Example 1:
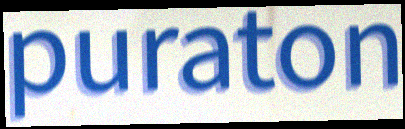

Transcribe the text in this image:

puraton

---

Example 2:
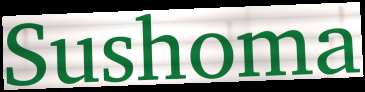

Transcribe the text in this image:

Sushoma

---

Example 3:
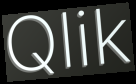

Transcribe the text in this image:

Qlik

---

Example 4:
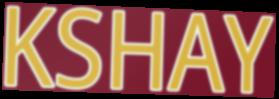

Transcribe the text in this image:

KSHAY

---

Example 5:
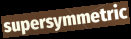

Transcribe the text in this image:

supersymmetric